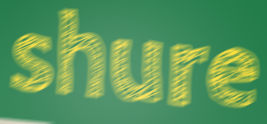
shure